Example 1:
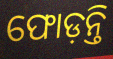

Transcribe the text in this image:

ଫୋଡ଼ନ୍ତି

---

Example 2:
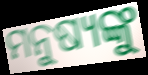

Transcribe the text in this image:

ମନୁଷ୍ୟଙ୍କୁ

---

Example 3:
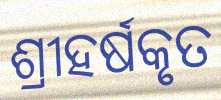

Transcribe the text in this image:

ଶ୍ରୀହର୍ଷକୃତ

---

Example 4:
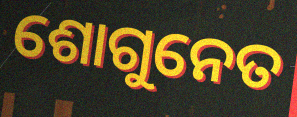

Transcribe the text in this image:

ଶୋଗୁନେତ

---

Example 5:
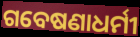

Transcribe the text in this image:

ଗବେଷଣାଧର୍ମୀ